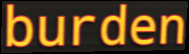
burden